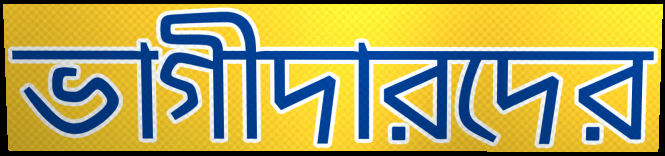
ভাগীদারদের